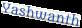
Yashwanth